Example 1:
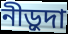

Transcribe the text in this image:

নীড়ুদা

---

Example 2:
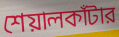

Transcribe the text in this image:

শেয়ালকাঁটার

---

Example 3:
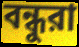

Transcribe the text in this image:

বন্ধুরা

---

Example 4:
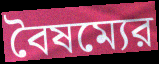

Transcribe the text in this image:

বৈষম্যের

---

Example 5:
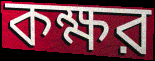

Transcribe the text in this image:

কক্ষর